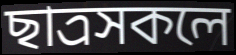
ছাত্ৰসকলে